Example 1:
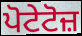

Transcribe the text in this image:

ਪੋਟੇਟੋਜ਼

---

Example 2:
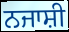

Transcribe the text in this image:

ਨਜਾਸ਼ੀ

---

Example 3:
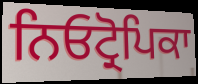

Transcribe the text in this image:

ਨਿਓਟ੍ਰੋਪਿਕਾ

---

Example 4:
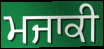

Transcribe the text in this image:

ਮਜਾਕੀ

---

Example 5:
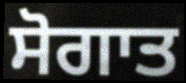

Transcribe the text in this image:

ਸੋਗਾਤ